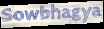
Sowbhagya